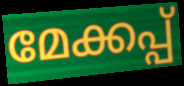
മേക്കപ്പ്